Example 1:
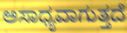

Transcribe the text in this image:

ಅಸಾಧ್ಯವಾಗುತ್ತದೆ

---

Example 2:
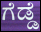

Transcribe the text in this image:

ಗೆಡ್ಡೆ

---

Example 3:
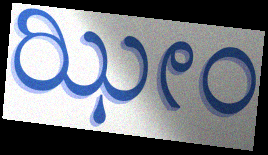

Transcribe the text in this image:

ಝೀಂ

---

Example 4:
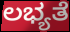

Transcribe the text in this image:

ಲಭ್ಯತೆ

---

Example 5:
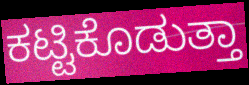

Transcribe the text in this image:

ಕಟ್ಟಿಕೊಡುತ್ತಾ